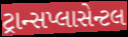
ટ્રાન્સપ્લાસેન્ટલ